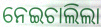
ନେଇଚାଲିଲା